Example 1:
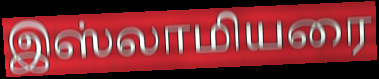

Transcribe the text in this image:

இஸ்லாமியரை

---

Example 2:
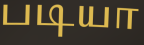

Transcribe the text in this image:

படியா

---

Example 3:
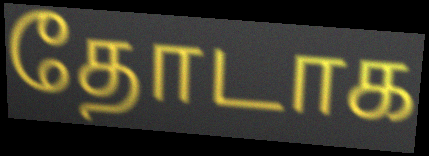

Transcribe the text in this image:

தோடாக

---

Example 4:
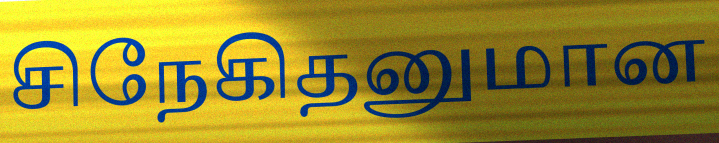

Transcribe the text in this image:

சிநேகிதனுமான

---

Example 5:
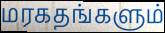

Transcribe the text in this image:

மரகதங்களும்